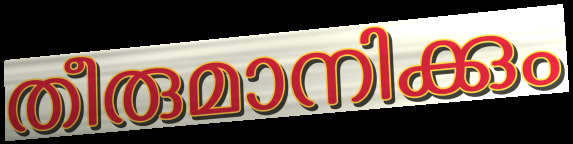
തീരുമാനിക്കും